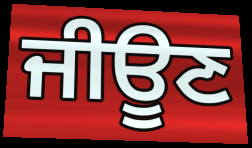
ਜੀਊਣ